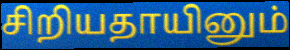
சிறியதாயினும்